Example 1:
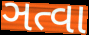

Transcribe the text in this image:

ઞત્વા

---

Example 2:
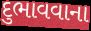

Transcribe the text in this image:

દુભાવવાના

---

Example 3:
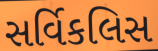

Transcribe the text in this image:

સર્વિકલિસ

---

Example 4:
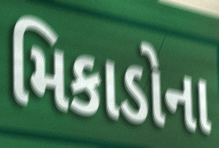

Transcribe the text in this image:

મિકાડોના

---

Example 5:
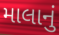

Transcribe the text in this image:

માલાનું